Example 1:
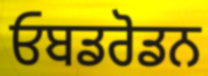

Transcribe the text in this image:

ਓਬਡਰੋਡਨ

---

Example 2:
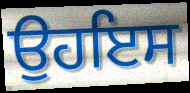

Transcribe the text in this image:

ਉਹਇਸ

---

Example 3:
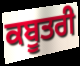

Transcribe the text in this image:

ਕਬੂਤਰੀ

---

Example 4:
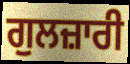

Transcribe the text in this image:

ਗੁਲਜ਼ਾਰੀ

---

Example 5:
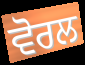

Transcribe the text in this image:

ਵੋਰਲ